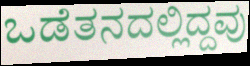
ಒಡೆತನದಲ್ಲಿದ್ದವು